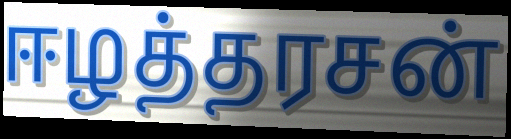
ஈழத்தரசன்